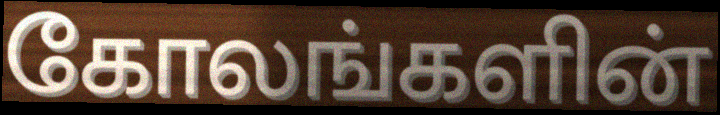
கோலங்களின்